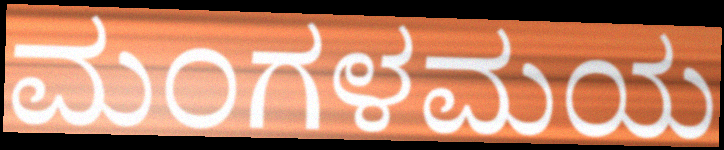
ಮಂಗಳಮಯ